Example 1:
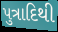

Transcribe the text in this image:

પુત્રાદિથી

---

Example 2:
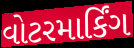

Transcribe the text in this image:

વોટરમાર્કિંગ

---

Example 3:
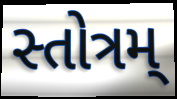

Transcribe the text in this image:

સ્તોત્રમ્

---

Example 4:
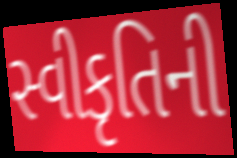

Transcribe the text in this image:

સ્વીકૃતિની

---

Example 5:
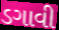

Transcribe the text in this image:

ડગાવી